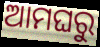
ଆମଘରୁ